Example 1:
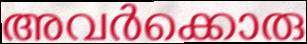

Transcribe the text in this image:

അവർക്കൊരു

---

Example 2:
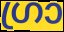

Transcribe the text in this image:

ഗ്രാ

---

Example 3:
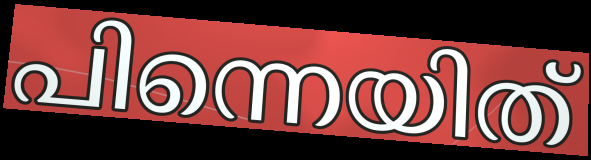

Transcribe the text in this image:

പിന്നെയിത്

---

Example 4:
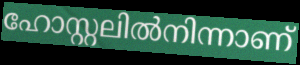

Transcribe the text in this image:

ഹോസ്റ്റലിൽനിന്നാണ്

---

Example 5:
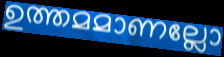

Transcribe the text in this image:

ഉത്തമമാണല്ലോ